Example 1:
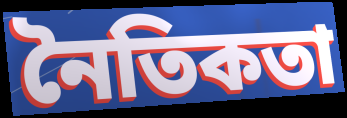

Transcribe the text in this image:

নৈতিকতা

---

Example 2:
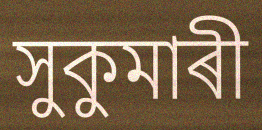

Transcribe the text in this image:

সুকুমাৰী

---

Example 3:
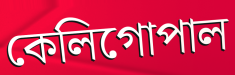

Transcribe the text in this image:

কেলিগোপাল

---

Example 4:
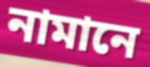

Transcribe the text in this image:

নামানে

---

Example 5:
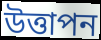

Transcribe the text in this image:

উত্তাপন